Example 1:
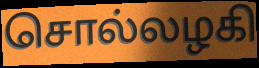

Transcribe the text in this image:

சொல்லழகி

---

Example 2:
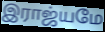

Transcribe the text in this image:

இராஜ்யமே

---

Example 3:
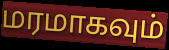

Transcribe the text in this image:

மரமாகவும்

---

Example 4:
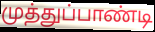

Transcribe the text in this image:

முத்துப்பாண்டி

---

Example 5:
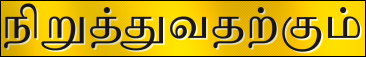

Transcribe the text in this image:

நிறுத்துவதற்கும்